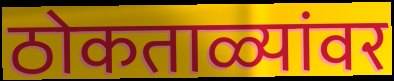
ठोकताळ्यांवर